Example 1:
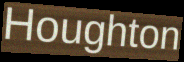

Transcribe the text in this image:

Houghton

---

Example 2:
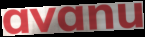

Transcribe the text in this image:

avanu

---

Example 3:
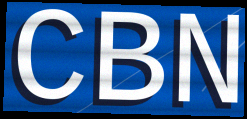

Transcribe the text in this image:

CBN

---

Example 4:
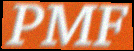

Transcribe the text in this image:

PMF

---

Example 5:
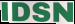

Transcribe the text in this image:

IDSN